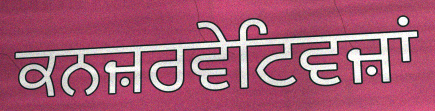
ਕਨਜ਼ਰਵੇਟਿਵਜ਼ਾਂ